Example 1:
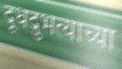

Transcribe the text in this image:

दूधदुभत्याच्या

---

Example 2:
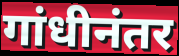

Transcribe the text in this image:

गांधीनंतर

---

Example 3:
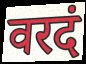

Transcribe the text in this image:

वरदं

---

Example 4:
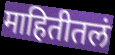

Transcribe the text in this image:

माहितीतलं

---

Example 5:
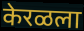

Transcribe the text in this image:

केरळला